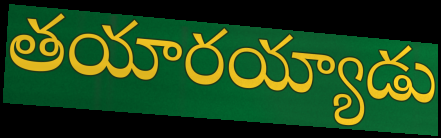
తయారయ్యాడు